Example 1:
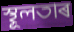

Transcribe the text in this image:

স্থূলতাৰ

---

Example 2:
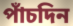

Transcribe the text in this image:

পাঁচদিন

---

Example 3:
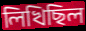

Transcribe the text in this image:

লিখিছিল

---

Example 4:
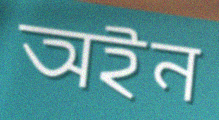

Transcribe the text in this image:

অইন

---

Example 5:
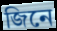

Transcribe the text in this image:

জিনে